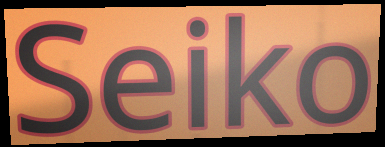
Seiko